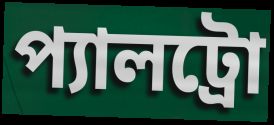
প্যালট্রো